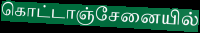
கொட்டாஞ்சேனையில்